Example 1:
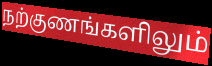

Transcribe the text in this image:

நற்குணங்களிலும்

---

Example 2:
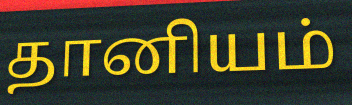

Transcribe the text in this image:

தானியம்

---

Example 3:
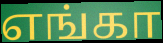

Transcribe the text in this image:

எங்கா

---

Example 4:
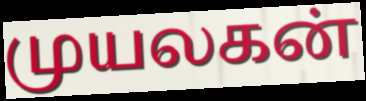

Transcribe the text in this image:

முயலகன்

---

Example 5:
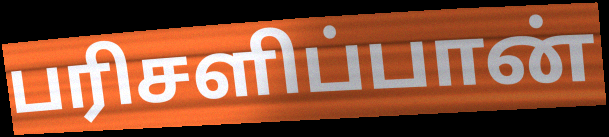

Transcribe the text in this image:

பரிசளிப்பான்